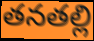
తనతల్లి